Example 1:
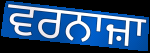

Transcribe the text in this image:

ਵਰਨਾਜ਼ਾ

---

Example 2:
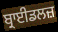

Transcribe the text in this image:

ਬ੍ਰਾਈਡਲਜ਼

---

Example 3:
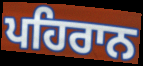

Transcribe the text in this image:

ਪਹਿਰਾਨ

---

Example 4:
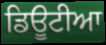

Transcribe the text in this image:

ਡਿਊਟੀਆ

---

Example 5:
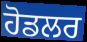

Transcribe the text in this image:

ਹੋਡਲਰ